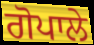
ਗੋਪਾਲੇ